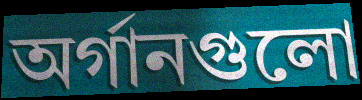
অর্গানগুলো